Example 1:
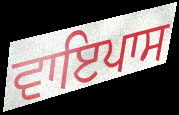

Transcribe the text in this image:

ਵਾਇਪਾਸ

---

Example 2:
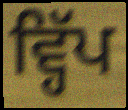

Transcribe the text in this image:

ਵ੍ਹਿੱਪ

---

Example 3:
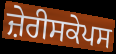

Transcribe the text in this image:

ਜ਼ੇਰੀਸਕੇਪਸ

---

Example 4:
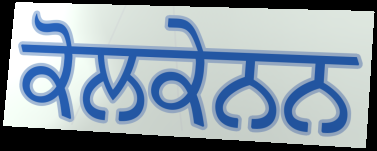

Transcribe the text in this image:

ਕੋਲਕੇਨਨ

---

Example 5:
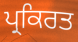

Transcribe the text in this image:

ਪ੍ਰਕਿਰਤ